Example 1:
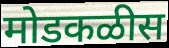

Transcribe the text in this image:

मोडकळीस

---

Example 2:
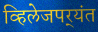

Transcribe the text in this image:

व्हिलेजपर्यंत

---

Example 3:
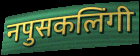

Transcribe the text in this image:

नपुसकलिंगी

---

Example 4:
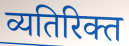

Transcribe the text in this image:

व्यतिरिक्त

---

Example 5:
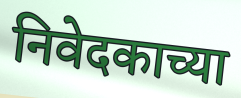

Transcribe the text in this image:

निवेदकाच्या